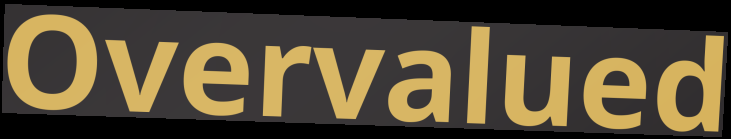
Overvalued